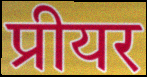
प्रीयर